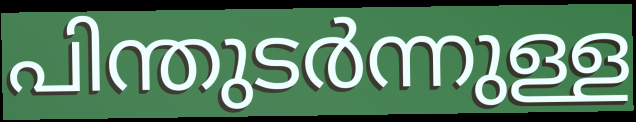
പിന്തുടർന്നുള്ള